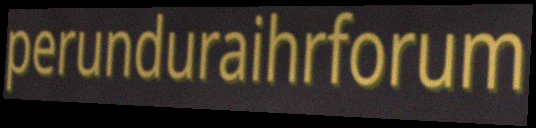
perunduraihrforum